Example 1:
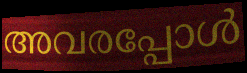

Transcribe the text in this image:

അവരപ്പോൾ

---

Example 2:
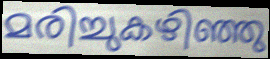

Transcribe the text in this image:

മരിച്ചുകഴിഞ്ഞു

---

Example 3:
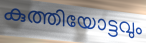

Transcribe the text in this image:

കുത്തിയോട്ടവും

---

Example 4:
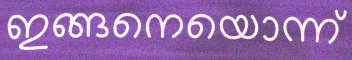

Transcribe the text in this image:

ഇങ്ങനെയൊന്ന്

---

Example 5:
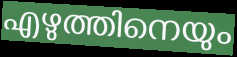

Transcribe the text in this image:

എഴുത്തിനെയും